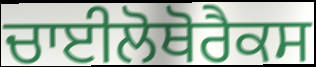
ਚਾਈਲੋਥੋਰੈਕਸ